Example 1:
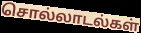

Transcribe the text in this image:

சொல்லாடல்கள்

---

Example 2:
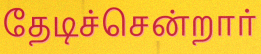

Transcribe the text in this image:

தேடிச்சென்றார்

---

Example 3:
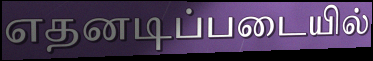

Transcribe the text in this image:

எதனடிப்படையில்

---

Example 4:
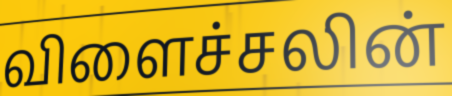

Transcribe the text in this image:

விளைச்சலின்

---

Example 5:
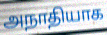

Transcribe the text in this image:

அநாதியாக